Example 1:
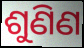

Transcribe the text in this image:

ଶୁଣିଣ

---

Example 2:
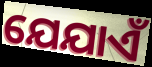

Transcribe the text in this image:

ଯେଯାଏଁ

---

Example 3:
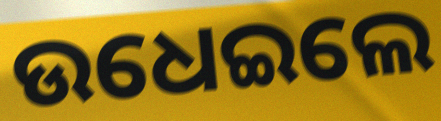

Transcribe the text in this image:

ଉଧେଇଲେ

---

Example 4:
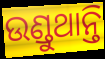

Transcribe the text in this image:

ଉଣ୍ଡୁଥାନ୍ତି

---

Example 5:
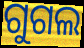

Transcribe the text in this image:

ଗୁଗଲ